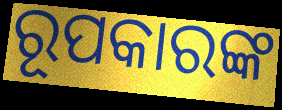
ରୂପକାରଙ୍କ